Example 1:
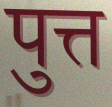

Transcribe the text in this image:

पुत्त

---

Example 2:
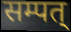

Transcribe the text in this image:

सम्पत्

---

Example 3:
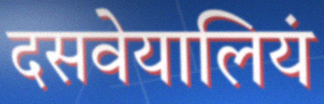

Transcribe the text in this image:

दसवेयालियं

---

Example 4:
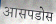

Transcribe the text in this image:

आसपडोस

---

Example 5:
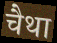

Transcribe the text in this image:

चैथा